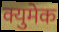
क्युमेक